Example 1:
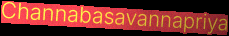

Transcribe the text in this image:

Channabasavannapriya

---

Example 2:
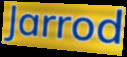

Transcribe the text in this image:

Jarrod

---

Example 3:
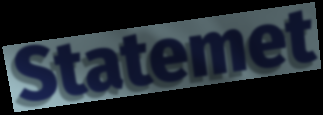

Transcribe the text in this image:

Statemet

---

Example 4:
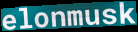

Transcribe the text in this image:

elonmusk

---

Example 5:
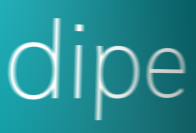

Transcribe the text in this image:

dipe